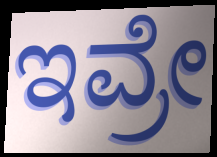
ಇವ್ರೇ